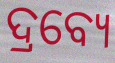
ଦ୍ରବ୍ୟେ